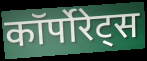
कॉर्पोरेट्स